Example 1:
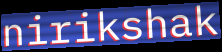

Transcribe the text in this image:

nirikshak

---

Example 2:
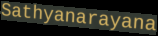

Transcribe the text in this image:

Sathyanarayana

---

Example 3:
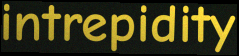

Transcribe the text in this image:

intrepidity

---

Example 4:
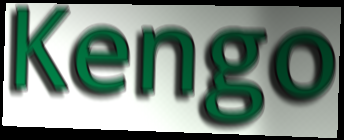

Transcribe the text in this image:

Kengo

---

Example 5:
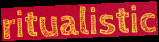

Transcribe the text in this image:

ritualistic